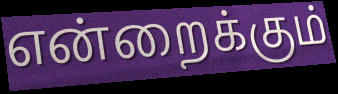
என்றைக்கும்